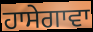
ਹਾਸੇਗਾਵਾ